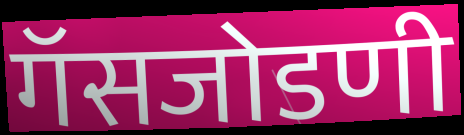
गॅसजोडणी